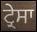
ਟ੍ਰੇਸਾ